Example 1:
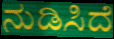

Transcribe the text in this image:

ನುಡಿಸಿದೆ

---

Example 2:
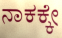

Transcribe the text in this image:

ನಾಕಕ್ಕೇ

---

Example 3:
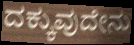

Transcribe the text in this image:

ದಕ್ಕುವುದೇನು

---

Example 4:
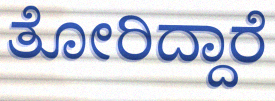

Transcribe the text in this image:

ತೋರಿದ್ದಾರೆ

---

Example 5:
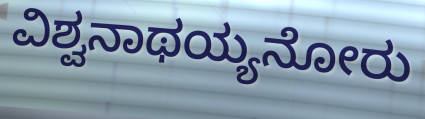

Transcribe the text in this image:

ವಿಶ್ವನಾಥಯ್ಯನೋರು